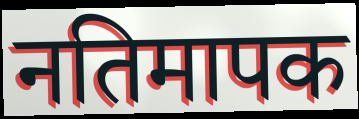
नतिमापक